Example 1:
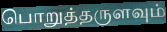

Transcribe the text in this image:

பொறுத்தருளவும்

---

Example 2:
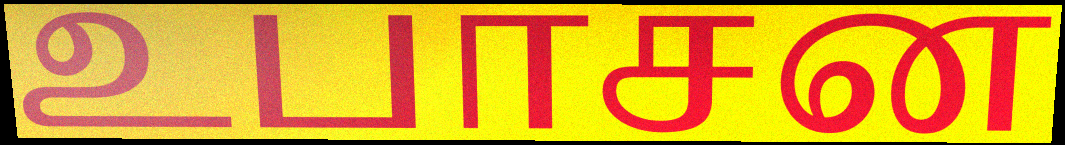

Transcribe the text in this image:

உபாசன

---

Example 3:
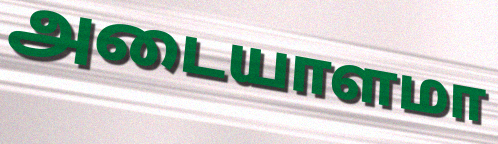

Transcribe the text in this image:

அடையாளமா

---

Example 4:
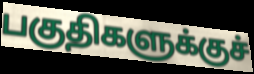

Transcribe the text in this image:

பகுதிகளுக்குச்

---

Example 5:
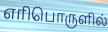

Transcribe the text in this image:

எரிபொருளில்